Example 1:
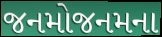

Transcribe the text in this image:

જનમોજનમના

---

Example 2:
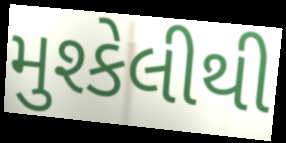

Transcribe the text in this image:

મુશ્કેલીથી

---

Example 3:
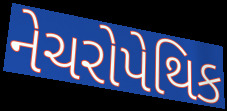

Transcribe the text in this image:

નેચરોપેથિક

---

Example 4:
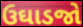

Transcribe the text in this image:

ઉઘાડજો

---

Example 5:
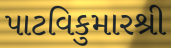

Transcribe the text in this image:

પાટવિકુમારશ્રી